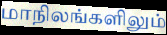
மாநிலங்களிலும்